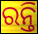
ରନ୍ତି